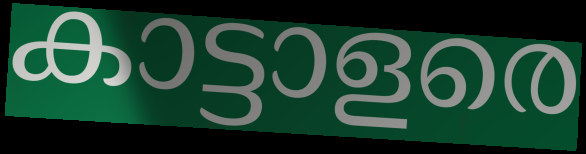
കാട്ടാളരെ